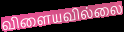
விளையவில்லை